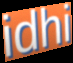
idhi